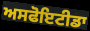
ਅਸਫੋਇਟੀਡਾ